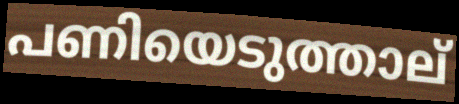
പണിയെടുത്താല്